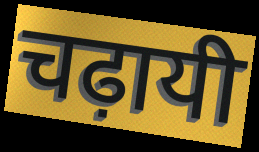
चढ़ायी